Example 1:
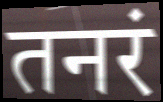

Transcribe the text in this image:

तनरं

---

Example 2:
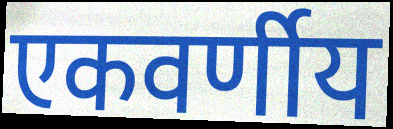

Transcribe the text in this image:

एकवर्णीय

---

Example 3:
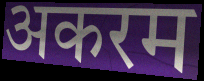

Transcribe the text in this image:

अकरम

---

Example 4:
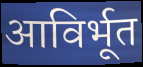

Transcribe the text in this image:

आविर्भूत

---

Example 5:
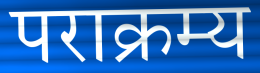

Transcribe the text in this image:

पराक्रम्य